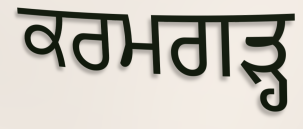
ਕਰਮਗੜ੍ਹ